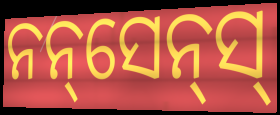
ନନ୍‌ସେନ୍‌ସ୍